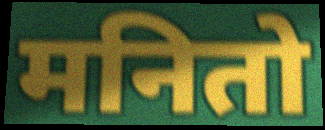
मनितो